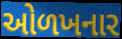
ઓળખનાર